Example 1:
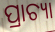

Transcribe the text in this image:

ପ୍ରାଚ୍ୟା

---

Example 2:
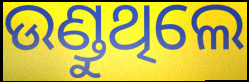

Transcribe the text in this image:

ଉଣ୍ଡୁଥିଲେ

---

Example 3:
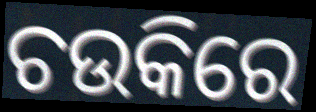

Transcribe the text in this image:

ଚଉକିରେ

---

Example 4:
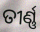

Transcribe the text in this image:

ତୀର୍ଣ୍ଣ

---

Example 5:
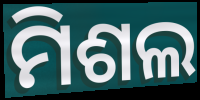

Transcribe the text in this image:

ମିଶଲ